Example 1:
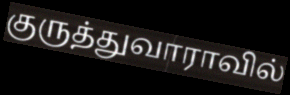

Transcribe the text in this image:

குருத்துவாராவில்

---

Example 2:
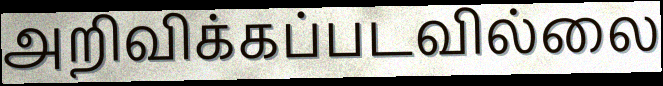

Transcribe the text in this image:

அறிவிக்கப்படவில்லை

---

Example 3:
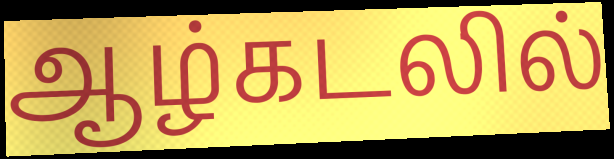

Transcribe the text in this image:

ஆழ்கடலில்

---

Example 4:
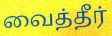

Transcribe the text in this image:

வைத்தீர்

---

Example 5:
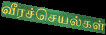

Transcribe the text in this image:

வீரச்செயல்கள்